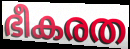
ഭീകരത